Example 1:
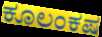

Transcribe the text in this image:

ಕೂಲಂಕಷ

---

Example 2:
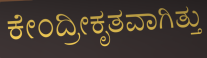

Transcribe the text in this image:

ಕೇಂದ್ರೀಕೃತವಾಗಿತ್ತು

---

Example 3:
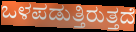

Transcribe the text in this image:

ಒಳಪಡುತ್ತಿರುತ್ತದೆ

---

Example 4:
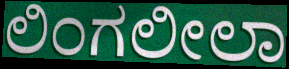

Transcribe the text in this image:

ಲಿಂಗಲೀಲಾ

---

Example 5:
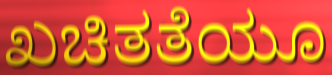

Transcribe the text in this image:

ಖಚಿತತೆಯೂ